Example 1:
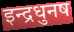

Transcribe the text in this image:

इन्द्रधुनष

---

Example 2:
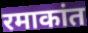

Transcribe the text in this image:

रमाकांत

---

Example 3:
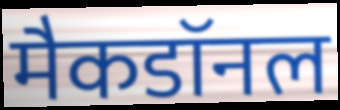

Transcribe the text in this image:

मैकडॉनल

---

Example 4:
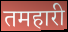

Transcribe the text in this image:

तमहारी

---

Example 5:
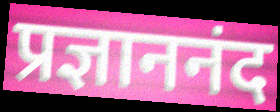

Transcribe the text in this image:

प्रज्ञाननंद